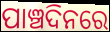
ପାଞ୍ଚଦିନରେ